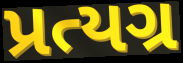
પ્રત્યગ્ર